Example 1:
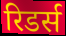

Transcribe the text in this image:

रिडर्स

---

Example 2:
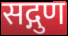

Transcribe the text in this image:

सद्गुण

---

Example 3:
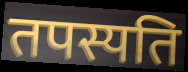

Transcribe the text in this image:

तपस्यति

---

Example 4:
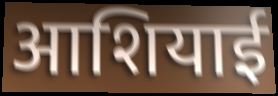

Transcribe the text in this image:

आशियाई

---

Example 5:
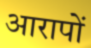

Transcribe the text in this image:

आरापों